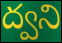
ద్వని